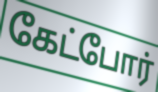
கேட்போர்